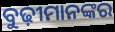
ବୁଢ଼ୀମାନଙ୍କର